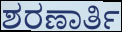
ಶರಣಾರ್ತಿ